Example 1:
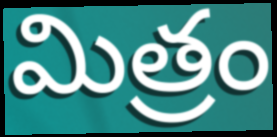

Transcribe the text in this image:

మిత్రం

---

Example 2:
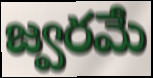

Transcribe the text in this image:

జ్వరమే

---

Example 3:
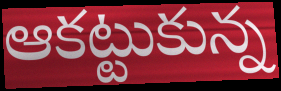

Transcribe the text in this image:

ఆకట్టుకున్న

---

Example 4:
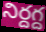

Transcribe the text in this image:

నిర్దగ్ద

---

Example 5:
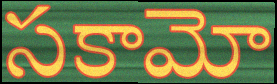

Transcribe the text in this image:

సకామో